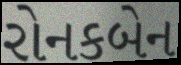
રોનકબેન